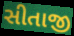
સીતાજી